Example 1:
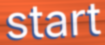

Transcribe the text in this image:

start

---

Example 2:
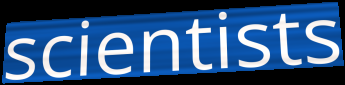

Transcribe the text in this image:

scientists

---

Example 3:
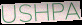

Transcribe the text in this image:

USHPA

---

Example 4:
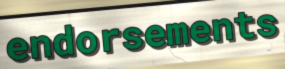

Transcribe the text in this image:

endorsements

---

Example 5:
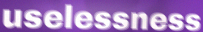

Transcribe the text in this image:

uselessness